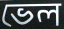
ভেল